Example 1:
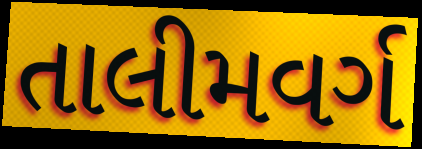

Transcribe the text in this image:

તાલીમવર્ગ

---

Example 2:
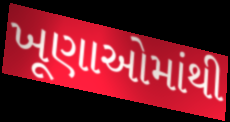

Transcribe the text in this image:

ખૂણાઓમાંથી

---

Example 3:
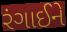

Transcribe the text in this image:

રંગાઈને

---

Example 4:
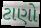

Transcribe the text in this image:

ટાણો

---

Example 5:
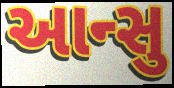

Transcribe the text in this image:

આન્સુ